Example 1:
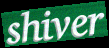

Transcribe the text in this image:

shiver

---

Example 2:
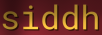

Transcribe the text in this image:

siddh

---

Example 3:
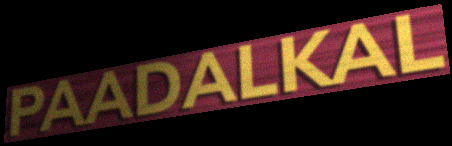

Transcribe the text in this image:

PAADALKAL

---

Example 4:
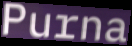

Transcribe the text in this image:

Purna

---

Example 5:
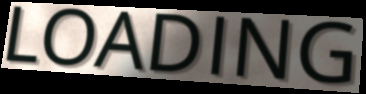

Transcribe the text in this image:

LOADING